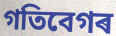
গতিবেগৰ